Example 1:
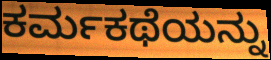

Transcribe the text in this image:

ಕರ್ಮಕಥೆಯನ್ನು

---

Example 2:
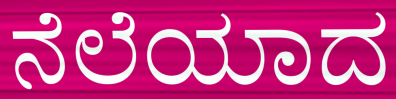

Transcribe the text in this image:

ನೆಲೆಯಾದ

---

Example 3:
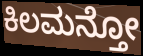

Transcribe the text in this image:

ಕಿಲಮನ್ತೋ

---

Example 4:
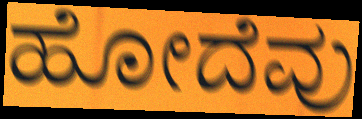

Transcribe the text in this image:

ಹೋದೆವು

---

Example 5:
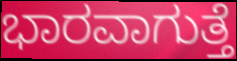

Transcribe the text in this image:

ಭಾರವಾಗುತ್ತೆ